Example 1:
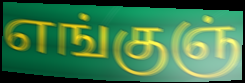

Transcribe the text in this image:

எங்குஞ்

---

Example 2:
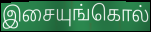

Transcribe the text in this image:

இசையுங்கொல்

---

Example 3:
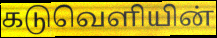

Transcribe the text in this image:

கடுவெளியின்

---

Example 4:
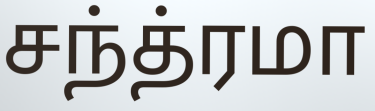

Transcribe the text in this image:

சந்த்ரமா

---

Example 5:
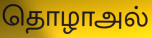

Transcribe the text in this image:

தொழாஅல்